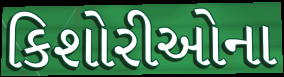
કિશોરીઓના